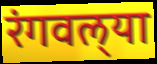
रंगवल्या